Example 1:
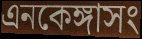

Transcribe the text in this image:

এনকেঙ্গাসং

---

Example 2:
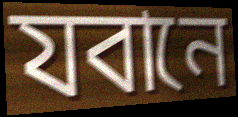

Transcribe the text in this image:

যবানে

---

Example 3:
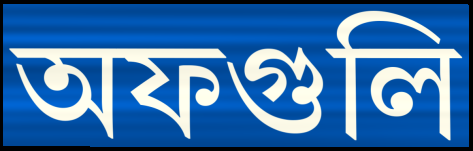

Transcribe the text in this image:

অফগুলি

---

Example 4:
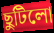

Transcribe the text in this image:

ছুটিলো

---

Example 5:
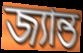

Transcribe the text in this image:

জ্যান্ত